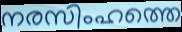
നരസിംഹത്തെ